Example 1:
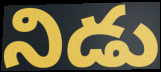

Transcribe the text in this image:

నిడు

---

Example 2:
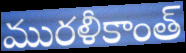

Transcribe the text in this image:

మురళీకాంత్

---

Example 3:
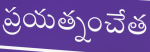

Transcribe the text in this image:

ప్రయత్నంచేత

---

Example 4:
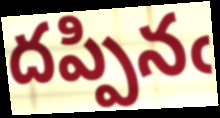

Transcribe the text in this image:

దప్పినఁ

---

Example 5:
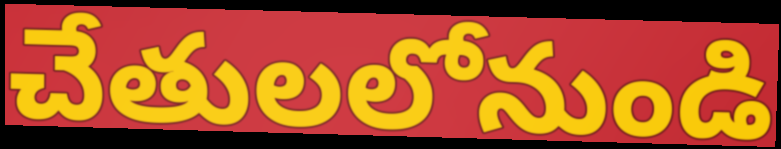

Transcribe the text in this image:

చేతులలోనుండి